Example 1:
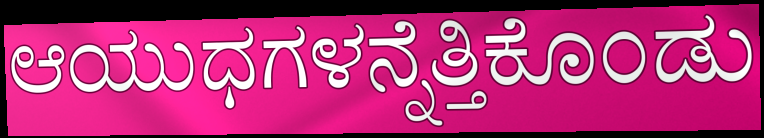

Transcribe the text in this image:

ಆಯುಧಗಳನ್ನೆತ್ತಿಕೊಂಡು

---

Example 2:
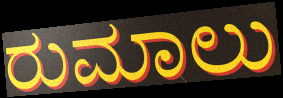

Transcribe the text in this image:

ರುಮಾಲು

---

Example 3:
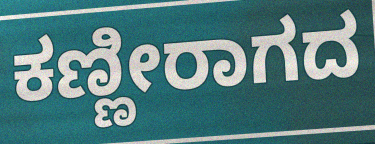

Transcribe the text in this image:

ಕಣ್ಣೀರಾಗದ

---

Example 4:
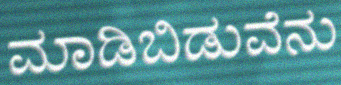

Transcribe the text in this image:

ಮಾಡಿಬಿಡುವೆನು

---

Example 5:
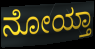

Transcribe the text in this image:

ನೋಯ್ತಾ